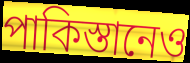
পাকিস্তানেও